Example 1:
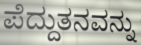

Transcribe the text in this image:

ಪೆದ್ದುತನವನ್ನು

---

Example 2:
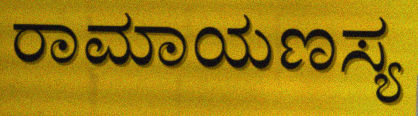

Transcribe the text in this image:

ರಾಮಾಯಣಸ್ಯ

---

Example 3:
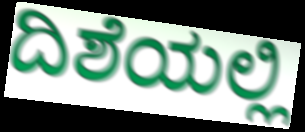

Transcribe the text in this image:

ದಿಶೆಯಲ್ಲಿ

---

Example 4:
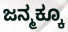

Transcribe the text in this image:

ಜನ್ಮಕ್ಕೂ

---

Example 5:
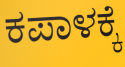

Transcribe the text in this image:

ಕಪಾಳಕ್ಕೆ